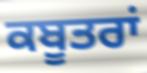
ਕਬੂਤਰਾਂ